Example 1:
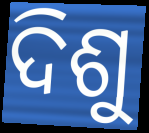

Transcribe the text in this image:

ଦିଶୁ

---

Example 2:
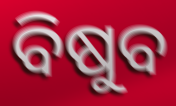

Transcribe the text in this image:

ବିଷୁବ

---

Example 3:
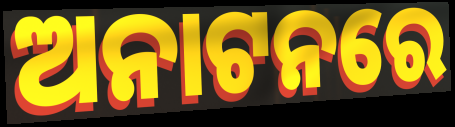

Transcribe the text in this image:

ଅନାଟନରେ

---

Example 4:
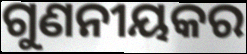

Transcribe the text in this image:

ଗୁଣନୀୟକର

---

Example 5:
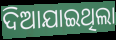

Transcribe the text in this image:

ଦିଆଯାଇଥିଲା